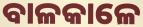
ବାଳକାଳେ